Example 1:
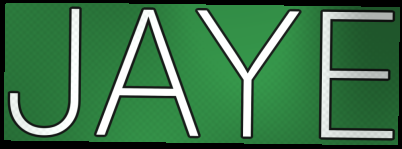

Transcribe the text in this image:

JAYE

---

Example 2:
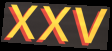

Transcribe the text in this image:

xxv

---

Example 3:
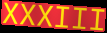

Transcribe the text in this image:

XXXIII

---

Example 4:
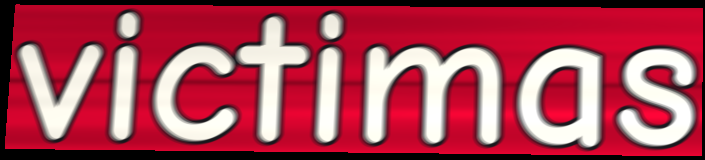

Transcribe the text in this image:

victimas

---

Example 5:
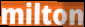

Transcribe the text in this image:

milton